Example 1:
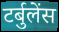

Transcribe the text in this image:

टर्बुलेंस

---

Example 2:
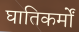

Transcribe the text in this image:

घातिकर्मों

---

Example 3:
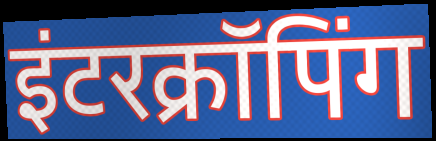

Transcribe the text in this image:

इंटरक्रॉपिंग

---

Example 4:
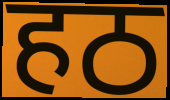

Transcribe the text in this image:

हठ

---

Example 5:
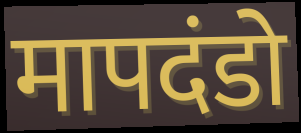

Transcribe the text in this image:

मापदंडो